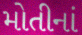
મોતીનાં